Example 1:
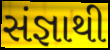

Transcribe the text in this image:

સંજ્ઞાથી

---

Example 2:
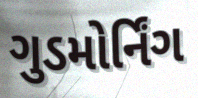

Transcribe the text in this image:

ગુડમોર્નિંગ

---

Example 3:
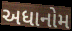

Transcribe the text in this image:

અધાનોમ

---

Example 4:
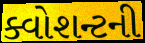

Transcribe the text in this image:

ક્વોશન્ટની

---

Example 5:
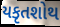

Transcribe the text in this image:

યકૃતશોથ